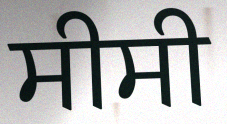
ਸੀਸੀ